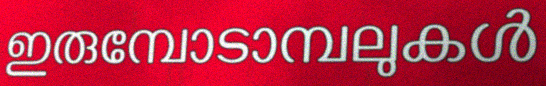
ഇരുമ്പോടാമ്പലുകൾ